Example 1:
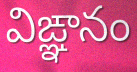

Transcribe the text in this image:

విఙ్ఞానం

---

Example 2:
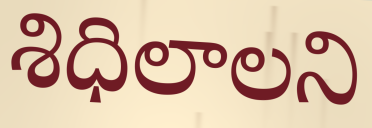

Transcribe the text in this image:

శిధిలాలని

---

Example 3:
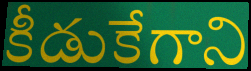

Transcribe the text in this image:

కీడుకేగాని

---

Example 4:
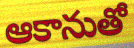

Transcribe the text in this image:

ఆకానుతో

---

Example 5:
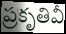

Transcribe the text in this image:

ప్రకృతివీ